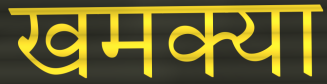
खमक्या